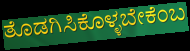
ತೊಡಗಿಸಿಕೊಳ್ಳಬೇಕೆಂಬ